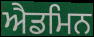
ਐਡਮਿਨ